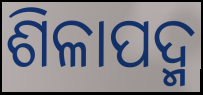
ଶିଳାପଦ୍ମ